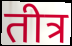
तीत्र